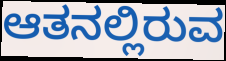
ಆತನಲ್ಲಿರುವ